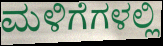
ಮಳಿಗೆಗಳಲ್ಲಿ